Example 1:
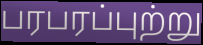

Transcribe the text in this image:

பரபரப்புற்று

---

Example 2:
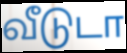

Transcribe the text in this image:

வீடுடா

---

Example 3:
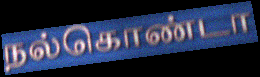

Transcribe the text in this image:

நல்கொண்டா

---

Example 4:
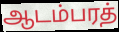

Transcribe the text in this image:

ஆடம்பரத்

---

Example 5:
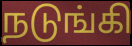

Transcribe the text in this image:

நடுங்கி